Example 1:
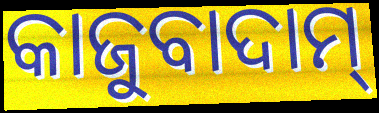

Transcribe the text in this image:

କାଜୁବାଦାମ୍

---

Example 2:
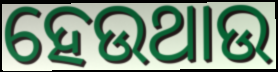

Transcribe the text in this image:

ହେଉଥାଉ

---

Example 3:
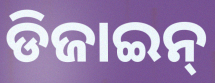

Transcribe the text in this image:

ଡିଜାଇନ୍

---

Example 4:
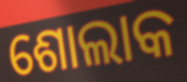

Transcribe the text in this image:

ଶୋଲାକ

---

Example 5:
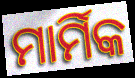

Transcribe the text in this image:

ମାର୍ମିକ